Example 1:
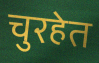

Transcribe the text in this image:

चुरहेत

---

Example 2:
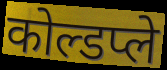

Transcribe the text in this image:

कोल्डप्ले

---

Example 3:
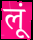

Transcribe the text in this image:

लूं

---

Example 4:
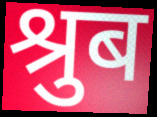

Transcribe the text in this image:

श्रुब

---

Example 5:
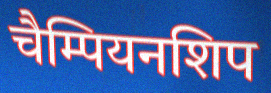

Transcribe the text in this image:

चैम्पियनशिप